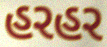
હરહર